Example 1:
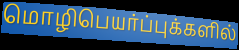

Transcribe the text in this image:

மொழிபெயர்ப்புக்களில்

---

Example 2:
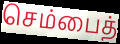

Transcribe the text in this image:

செம்பைத்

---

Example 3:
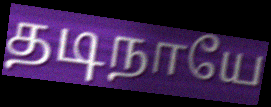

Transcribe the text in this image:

தடிநாயே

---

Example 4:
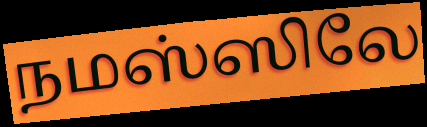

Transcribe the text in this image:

நமஸ்ஸிலே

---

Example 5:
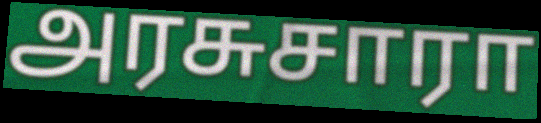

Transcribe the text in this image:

அரசுசாரா